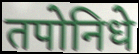
तपोनिधे